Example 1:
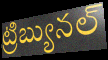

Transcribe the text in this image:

ట్రిబ్యునల్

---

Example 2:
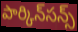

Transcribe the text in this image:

పార్కిన్‌సన్స్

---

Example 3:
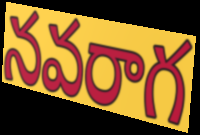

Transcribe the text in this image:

నవరాగ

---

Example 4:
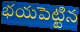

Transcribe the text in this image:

భయపెట్టిన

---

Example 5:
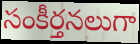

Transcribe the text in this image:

సంకీర్తనలుగా